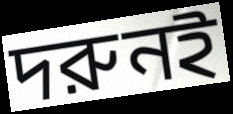
দরুনই